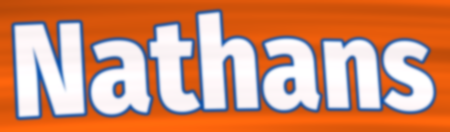
Nathans